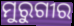
ମୁରୁଗୀର